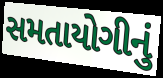
સમતાયોગીનું